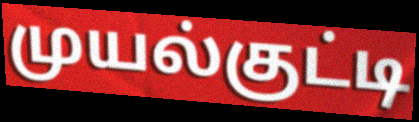
முயல்குட்டி